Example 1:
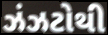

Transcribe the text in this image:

ઝંઝટોથી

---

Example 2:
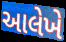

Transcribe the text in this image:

આલેખે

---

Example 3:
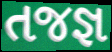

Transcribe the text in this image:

તજજ્ઞ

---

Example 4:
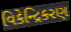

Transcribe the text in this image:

વિકેન્દ્રિકરણ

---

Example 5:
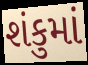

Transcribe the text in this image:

શંકુમાં